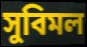
সুবিমল